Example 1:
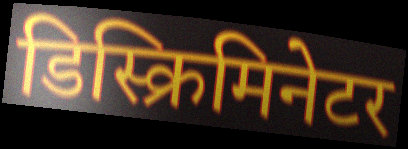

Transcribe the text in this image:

डिस्क्रिमिनेटर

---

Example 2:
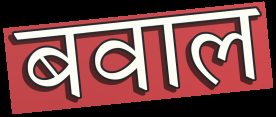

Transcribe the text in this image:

बवाल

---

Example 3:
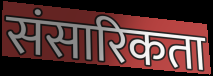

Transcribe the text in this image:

संसारिकता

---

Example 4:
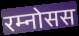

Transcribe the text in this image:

रम्नोसस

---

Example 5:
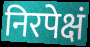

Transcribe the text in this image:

निरपेक्षं